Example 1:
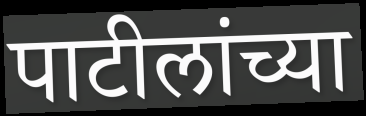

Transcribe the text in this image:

पाटीलांच्या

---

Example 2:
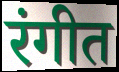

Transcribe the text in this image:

रंगीत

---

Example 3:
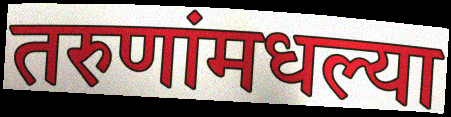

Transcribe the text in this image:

तरुणांमधल्या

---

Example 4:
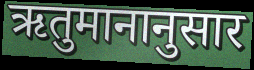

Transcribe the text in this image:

ऋतुमानानुसार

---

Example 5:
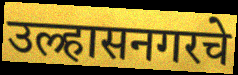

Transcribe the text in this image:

उल्हासनगरचे